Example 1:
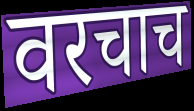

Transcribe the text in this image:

वरचाच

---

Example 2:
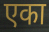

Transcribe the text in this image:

एका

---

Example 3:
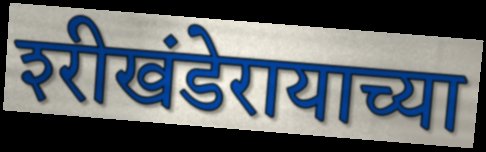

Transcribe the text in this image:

श्रीखंडेरायाच्या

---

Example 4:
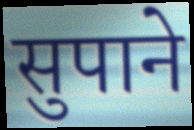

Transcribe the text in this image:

सुपाने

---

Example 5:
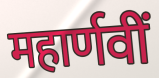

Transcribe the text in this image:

महार्णवीं